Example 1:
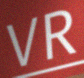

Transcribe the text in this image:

VR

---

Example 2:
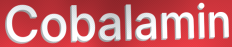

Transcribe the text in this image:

Cobalamin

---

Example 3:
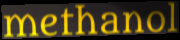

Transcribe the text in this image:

methanol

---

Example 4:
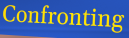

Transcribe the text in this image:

Confronting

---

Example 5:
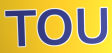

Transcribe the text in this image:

TOU